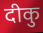
दीकु